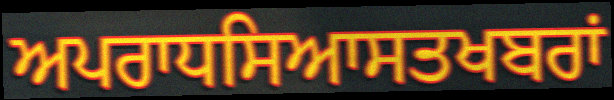
ਅਪਰਾਧਸਿਆਸਤਖਬਰਾਂ